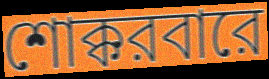
শোক্করবারে